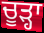
ਚੂੜ੍ਹਾ